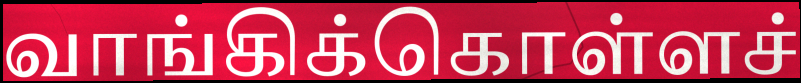
வாங்கிக்கொள்ளச்